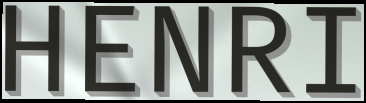
HENRI